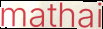
mathai